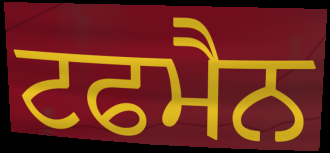
ਟਫਮੈਨ